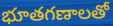
భూతగణాలతో